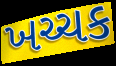
ખચ્ચક